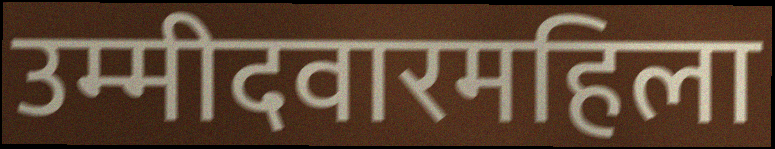
उम्मीदवारमहिला